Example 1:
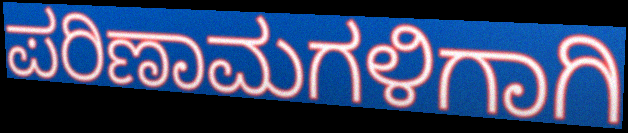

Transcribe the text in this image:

ಪರಿಣಾಮಗಳಿಗಾಗಿ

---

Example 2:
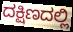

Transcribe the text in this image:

ದಕ್ಷಿಣದಲ್ಲಿ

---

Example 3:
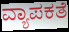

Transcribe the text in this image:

ವ್ಯಾಪಕತೆ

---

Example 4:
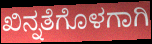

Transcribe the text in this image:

ಖಿನ್ನತೆಗೊಳಗಾಗಿ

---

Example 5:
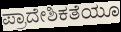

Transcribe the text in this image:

ಪ್ರಾದೇಶಿಕತೆಯೂ